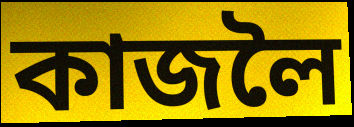
কাজলৈ